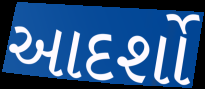
આદર્શો